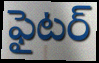
ఫైటర్